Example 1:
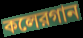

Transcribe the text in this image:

কলেরগান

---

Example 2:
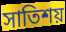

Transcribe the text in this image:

সাতিশয়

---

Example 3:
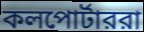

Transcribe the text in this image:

কলপোর্টাররা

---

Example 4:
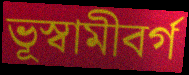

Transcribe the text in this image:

ভূস্বামীবর্গ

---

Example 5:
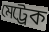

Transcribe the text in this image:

মেট্রেক